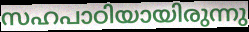
സഹപാഠിയായിരുന്നു